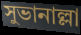
সুভানাল্লা